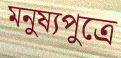
মনুষ্যপুত্রে